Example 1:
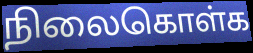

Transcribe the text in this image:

நிலைகொள்க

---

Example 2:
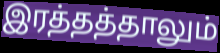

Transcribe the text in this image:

இரத்தத்தாலும்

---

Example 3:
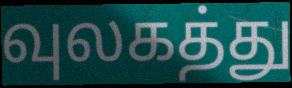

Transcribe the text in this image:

வுலகத்து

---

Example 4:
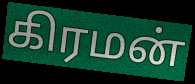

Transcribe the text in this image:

கிரமன்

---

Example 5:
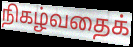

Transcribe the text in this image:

நிகழ்வதைக்